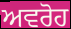
ਅਵਰੋਹ